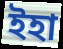
ইহা